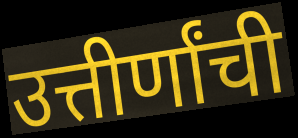
उत्तीर्णांची